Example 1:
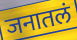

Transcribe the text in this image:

जनातलं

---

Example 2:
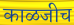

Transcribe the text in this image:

काळजीच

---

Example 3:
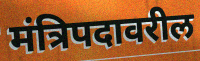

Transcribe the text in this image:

मंत्रिपदावरील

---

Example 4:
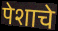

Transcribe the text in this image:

पेशाचे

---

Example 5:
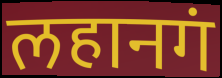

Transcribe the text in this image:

लहानगं